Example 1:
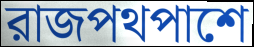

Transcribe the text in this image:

রাজপথপাশে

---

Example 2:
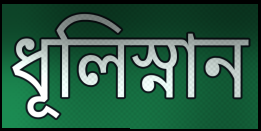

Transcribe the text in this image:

ধূলিস্নান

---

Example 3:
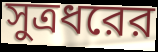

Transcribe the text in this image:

সুত্রধরের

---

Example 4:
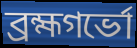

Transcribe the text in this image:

ব্রহ্মগর্ভো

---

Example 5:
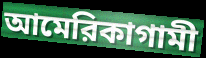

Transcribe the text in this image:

আমেরিকাগামী